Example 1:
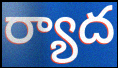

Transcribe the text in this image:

ర్యాద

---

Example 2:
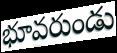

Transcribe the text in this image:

భూవరుండు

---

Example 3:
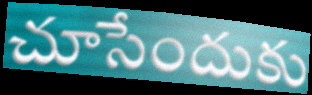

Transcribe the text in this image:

చూసేందుకు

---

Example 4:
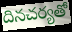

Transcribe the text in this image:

దినచర్యతో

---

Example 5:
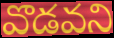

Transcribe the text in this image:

వొడవని